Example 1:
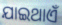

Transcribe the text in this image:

ଯାଇଥାଏଁ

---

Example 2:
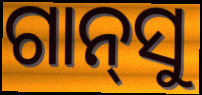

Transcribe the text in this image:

ଗାନ୍‍ସୁ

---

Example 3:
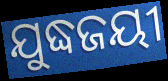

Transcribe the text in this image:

ଯୁଦ୍ଧଜୟୀ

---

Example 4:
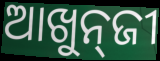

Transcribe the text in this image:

ଆଖୁନ୍‌ଜୀ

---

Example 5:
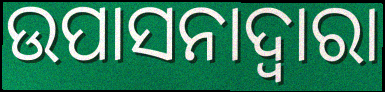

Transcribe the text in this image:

ଉପାସନାଦ୍ଵାରା